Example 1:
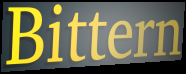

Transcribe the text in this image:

Bittern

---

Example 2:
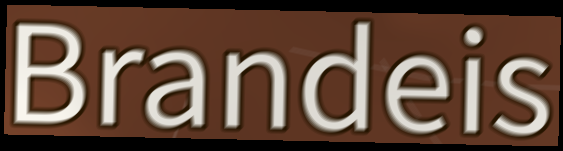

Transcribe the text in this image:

Brandeis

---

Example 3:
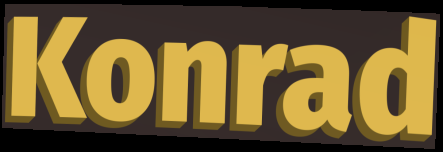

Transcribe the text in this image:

Konrad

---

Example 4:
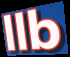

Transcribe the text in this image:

llb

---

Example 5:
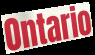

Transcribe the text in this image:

Ontario